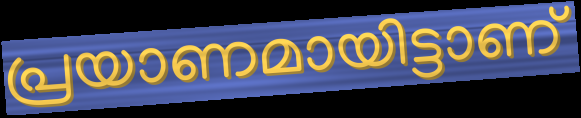
പ്രയാണമായിട്ടാണ്